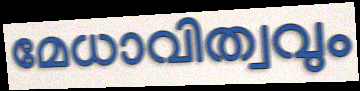
മേധാവിത്വവും